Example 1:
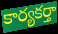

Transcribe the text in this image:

కార్యకర్తా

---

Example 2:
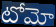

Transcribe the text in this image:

టోమో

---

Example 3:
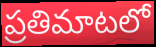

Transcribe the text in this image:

ప్రతిమాటలో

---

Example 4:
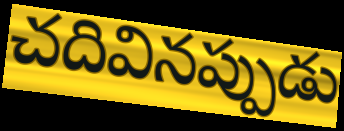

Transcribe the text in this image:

చదివినప్పుడు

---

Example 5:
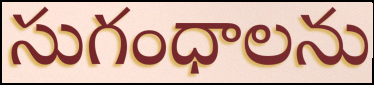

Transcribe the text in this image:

సుగంధాలను